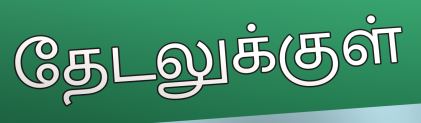
தேடலுக்குள்